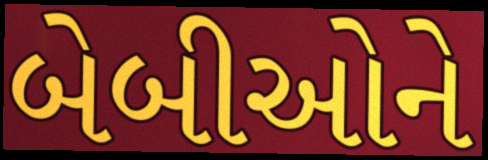
બેબીઓને